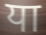
या